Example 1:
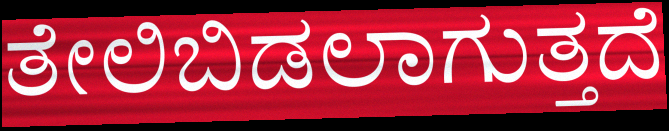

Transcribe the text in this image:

ತೇಲಿಬಿಡಲಾಗುತ್ತದೆ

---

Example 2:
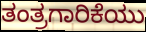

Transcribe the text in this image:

ತಂತ್ರಗಾರಿಕೆಯು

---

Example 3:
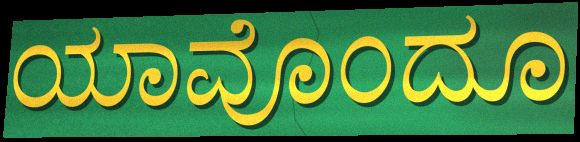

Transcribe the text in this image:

ಯಾವೊಂದೂ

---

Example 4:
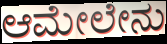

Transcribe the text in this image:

ಆಮೇಲೇನು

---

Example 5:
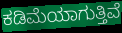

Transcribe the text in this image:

ಕಡಿಮೆಯಾಗುತ್ತಿವೆ